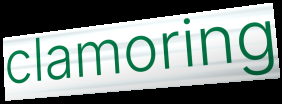
clamoring